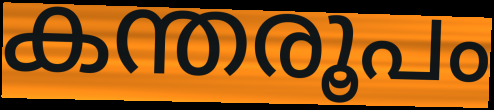
കന്തരൂപം